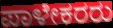
ಪಾಳೇಕರರು